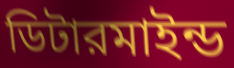
ডিটারমাইন্ড